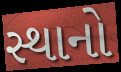
સ્થાનો